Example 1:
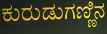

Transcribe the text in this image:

ಕುರುಡುಗಣ್ಣಿನ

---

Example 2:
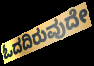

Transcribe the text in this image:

ಓದದಿರುವುದೇ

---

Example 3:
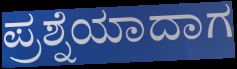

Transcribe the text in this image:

ಪ್ರಶ್ನೆಯಾದಾಗ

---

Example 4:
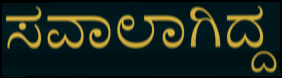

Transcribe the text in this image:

ಸವಾಲಾಗಿದ್ದ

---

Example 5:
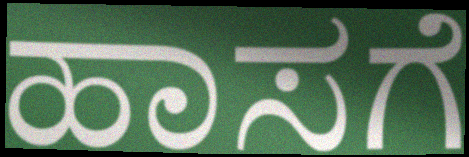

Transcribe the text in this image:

ಹಾಸಗೆ